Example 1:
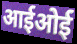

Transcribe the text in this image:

आईओई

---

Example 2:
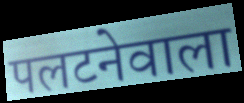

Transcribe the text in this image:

पलटनेवाला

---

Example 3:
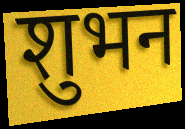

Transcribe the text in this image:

शुभन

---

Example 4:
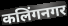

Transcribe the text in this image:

कलिंगनगर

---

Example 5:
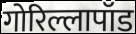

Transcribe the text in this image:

गोरिल्लापॉड